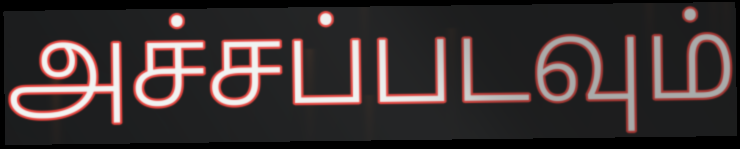
அச்சப்படவும்